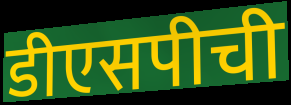
डीएसपीची